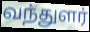
வந்துளர்